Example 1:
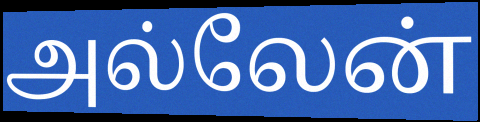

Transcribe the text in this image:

அல்லேன்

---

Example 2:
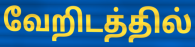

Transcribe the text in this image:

வேறிடத்தில்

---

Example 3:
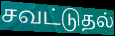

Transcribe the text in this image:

சவட்டுதல்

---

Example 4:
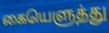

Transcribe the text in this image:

கையெளுத்து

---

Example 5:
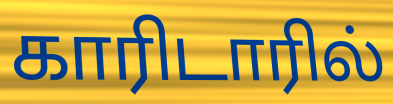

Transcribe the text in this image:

காரிடாரில்